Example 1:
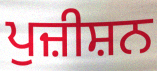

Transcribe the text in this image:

ਪੁਜ਼ੀਸ਼ਨ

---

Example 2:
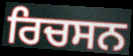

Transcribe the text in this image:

ਰਿਚਸਨ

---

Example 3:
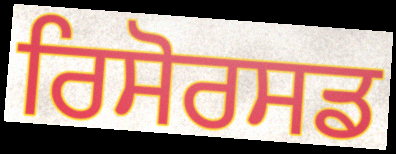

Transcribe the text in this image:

ਰਿਸੋਰਸਡ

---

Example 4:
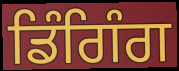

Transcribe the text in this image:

ਡਿੰਗਿੰਗ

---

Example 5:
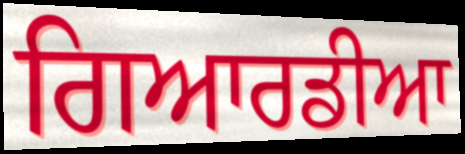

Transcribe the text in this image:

ਗਿਆਰਡੀਆ